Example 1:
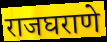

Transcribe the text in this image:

राजघराणे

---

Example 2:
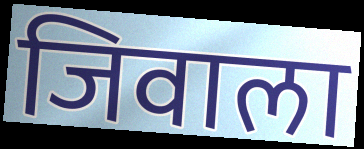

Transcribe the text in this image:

जिवाला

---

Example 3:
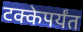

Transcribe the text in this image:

टक्केपर्यंत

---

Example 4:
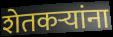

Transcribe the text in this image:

शेतकऱ्यांना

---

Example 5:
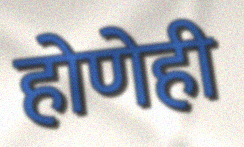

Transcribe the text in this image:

होणेही